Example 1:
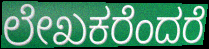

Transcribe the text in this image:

ಲೇಖಕರೆಂದರೆ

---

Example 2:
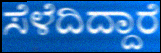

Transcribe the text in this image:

ಸೆಳೆದಿದ್ದಾರೆ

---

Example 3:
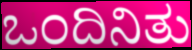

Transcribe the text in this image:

ಒಂದಿನಿತು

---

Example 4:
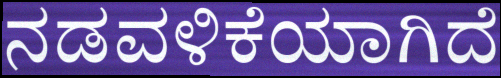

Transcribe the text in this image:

ನಡವಳಿಕೆಯಾಗಿದೆ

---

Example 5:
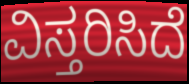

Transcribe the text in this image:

ವಿಸ್ತರಿಸಿದೆ